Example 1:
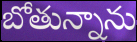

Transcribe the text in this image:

బోతున్నాను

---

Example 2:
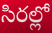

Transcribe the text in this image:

సిరల్లో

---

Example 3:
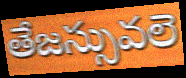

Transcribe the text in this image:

తేజస్సువలె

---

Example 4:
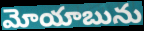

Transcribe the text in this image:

మోయాబును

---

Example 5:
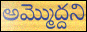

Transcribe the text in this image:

అమ్మొద్దని